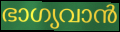
ഭാഗ്യവാൻ